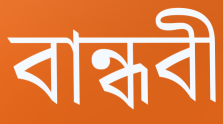
বান্ধবী